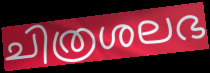
ചിത്രശലഭ